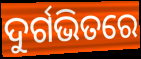
ଦୁର୍ଗଭିତରେ